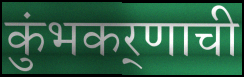
कुंभकर्णाची